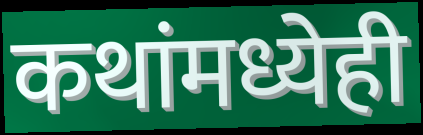
कथांमध्येही